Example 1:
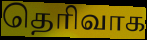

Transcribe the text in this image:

தெரிவாக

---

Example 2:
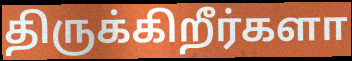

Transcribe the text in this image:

திருக்கிறீர்களா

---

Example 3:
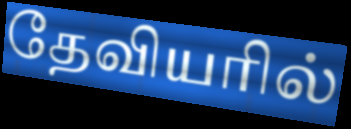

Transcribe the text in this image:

தேவியரில்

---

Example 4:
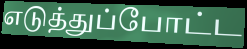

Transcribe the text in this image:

எடுத்துப்போட்ட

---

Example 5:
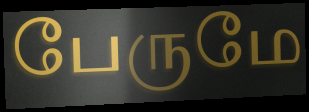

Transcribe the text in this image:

பேருமே